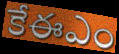
కేఈఎం